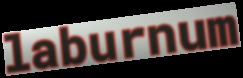
laburnum